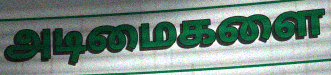
அடிமைகளை